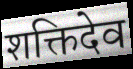
शक्तिदेव